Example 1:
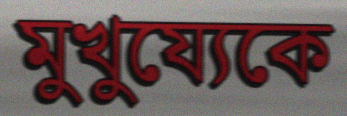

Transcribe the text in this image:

মুখুয্যেকে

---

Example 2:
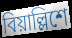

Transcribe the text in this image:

বিয়াল্লিশে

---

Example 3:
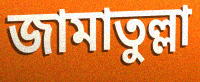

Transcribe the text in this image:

জামাতুল্লা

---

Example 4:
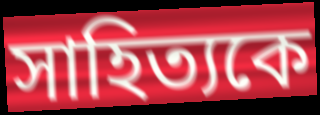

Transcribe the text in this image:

সাহিত্যকে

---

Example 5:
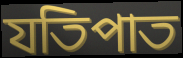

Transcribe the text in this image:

যতিপাত